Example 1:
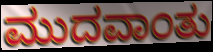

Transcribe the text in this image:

ಮುದವಾಂತು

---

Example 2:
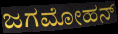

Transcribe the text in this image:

ಜಗಮೋಹನ್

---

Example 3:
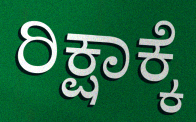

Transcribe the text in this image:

ರಿಕ್ಷಾಕ್ಕೆ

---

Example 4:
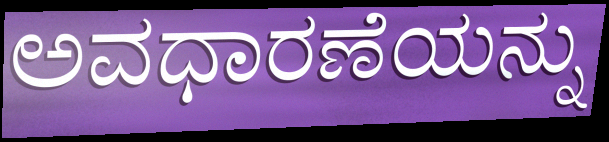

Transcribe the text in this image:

ಅವಧಾರಣೆಯನ್ನು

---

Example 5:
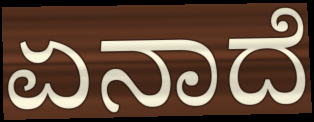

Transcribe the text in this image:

ಏನಾದೆ